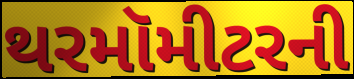
થરમૉમીટરની